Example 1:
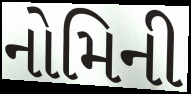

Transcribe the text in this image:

નોમિની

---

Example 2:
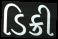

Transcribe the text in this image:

ડિક્રી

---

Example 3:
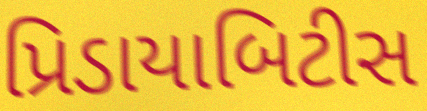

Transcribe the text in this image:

પ્રિડાયાબિટીસ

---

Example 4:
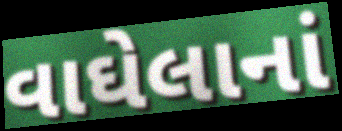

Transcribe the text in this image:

વાઘેલાનાં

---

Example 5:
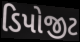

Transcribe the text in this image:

ડિપોજીટ